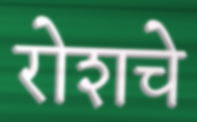
रोशचे